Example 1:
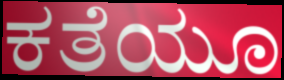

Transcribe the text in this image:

ಕತೆಯೂ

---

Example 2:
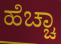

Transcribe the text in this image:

ಹೆಚ್ಚಾ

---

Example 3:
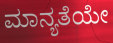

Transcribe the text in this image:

ಮಾನ್ಯತೆಯೇ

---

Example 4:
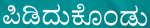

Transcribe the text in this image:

ಪಿಡಿದುಕೊಂಡು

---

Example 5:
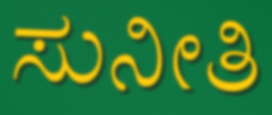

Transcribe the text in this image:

ಸುನೀತಿ